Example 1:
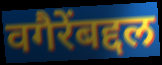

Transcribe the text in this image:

वगैरेंबद्दल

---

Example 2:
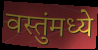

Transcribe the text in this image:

वस्तुंमध्ये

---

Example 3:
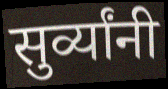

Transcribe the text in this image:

सुर्व्यांनी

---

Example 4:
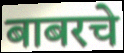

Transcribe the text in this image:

बाबरचे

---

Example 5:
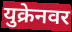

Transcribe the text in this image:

युक्रेनवर